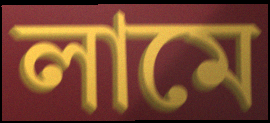
লামে